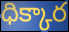
ధిక్కార